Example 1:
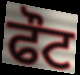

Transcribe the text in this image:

ਫੌਟ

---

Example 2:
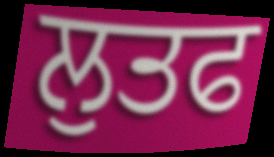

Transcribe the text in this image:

ਲੁਤਫ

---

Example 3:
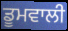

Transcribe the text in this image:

ਡੂਮਵਾਲੀ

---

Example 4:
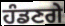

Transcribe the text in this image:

ਹੰਡਣਗੇ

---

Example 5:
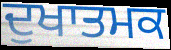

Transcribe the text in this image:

ਦੁਖਾਤਮਕ